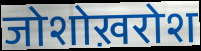
जोशोख़रोश